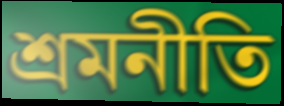
শ্রমনীতি